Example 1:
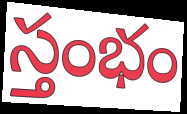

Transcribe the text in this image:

స్తంభం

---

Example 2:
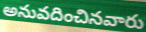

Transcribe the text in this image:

అనువదించినవారు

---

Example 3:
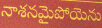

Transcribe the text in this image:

నాశనమైపోయెను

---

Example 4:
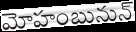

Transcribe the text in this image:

మోహంబునున్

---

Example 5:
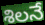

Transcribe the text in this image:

శిలనే